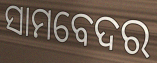
ସାମବେଦର